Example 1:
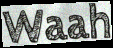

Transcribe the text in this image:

Waah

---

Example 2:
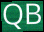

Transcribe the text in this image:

QB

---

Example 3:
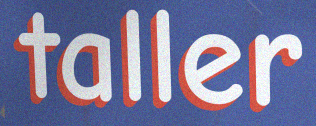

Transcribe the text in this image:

taller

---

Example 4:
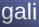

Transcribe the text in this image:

gali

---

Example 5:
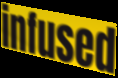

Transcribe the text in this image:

infused